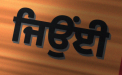
ਜਿਉਂਈ